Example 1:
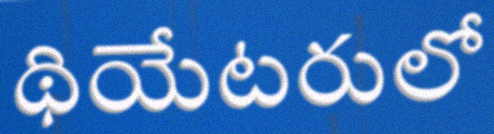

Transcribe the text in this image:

థియేటరులో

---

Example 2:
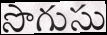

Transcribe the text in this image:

సొగుసు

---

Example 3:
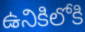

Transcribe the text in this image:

ఉనికిలోకి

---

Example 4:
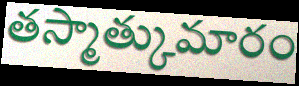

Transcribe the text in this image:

తస్మాత్కుమారం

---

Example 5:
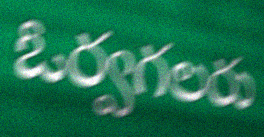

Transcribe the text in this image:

ఓర్వగలరు